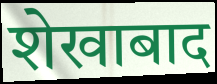
शेखाबाद